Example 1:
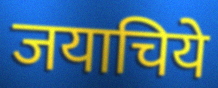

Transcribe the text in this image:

जयाचिये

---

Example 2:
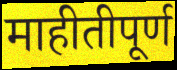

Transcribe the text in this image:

माहीतीपूर्ण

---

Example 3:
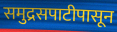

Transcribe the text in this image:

समुद्रसपाटीपासून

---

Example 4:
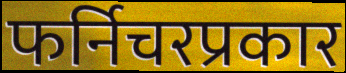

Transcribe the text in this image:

फर्निचरप्रकार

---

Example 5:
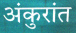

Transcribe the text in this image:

अंकुरांत